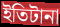
ইতিটানা